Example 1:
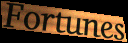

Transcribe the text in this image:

Fortunes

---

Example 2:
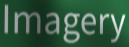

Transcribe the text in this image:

Imagery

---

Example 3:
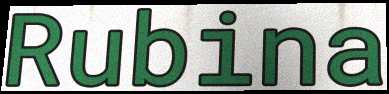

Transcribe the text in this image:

Rubina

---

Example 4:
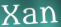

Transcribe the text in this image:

Xan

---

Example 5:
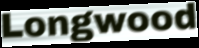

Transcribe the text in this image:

Longwood